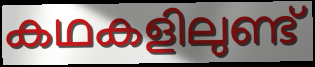
കഥകളിലുണ്ട്